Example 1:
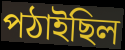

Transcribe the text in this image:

পঠাইছিল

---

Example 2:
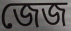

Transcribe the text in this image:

জেজ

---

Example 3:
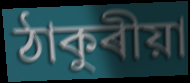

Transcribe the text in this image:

ঠাকুৰীয়া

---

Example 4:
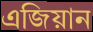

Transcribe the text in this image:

এজিয়ান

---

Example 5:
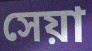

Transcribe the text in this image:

সেয়া